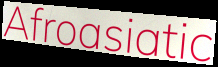
Afroasiatic